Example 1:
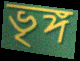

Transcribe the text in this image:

ভৃঙ্গ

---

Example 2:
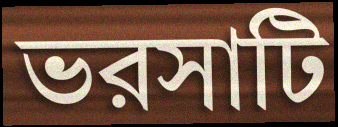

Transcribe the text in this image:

ভরসাটি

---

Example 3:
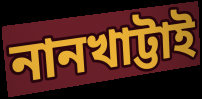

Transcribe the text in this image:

নানখাট্টাই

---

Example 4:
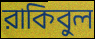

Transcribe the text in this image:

রাকিবুল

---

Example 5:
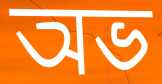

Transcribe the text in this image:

অভ